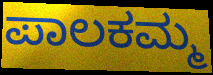
ಪಾಲಕಮ್ಮ